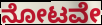
ನೋಟವೇ